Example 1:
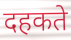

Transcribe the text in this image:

दहकते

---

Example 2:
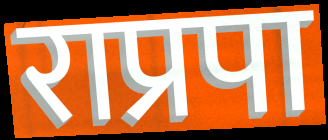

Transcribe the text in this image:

राप्रपा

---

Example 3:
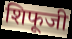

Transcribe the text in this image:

शिफूजी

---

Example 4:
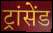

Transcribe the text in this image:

ट्रांसेंड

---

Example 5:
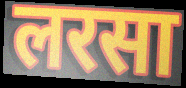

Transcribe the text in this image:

लरसा